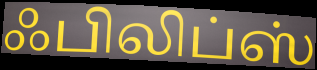
ஃபிலிப்ஸ்